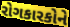
રોગકારકોને